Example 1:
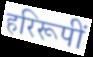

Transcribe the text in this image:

हरिरूपीं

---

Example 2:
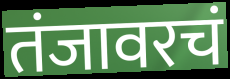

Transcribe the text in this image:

तंजावरचं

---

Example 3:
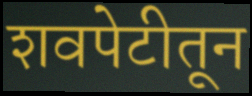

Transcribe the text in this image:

शवपेटीतून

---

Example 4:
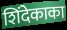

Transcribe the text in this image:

शिंदेकाका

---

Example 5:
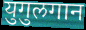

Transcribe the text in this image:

युगुलगान